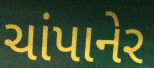
ચાંપાનેર